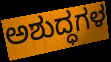
ಅಶುದ್ಧಗಳ